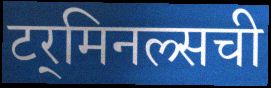
टर्मिनल्सची